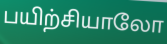
பயிற்சியாலோ